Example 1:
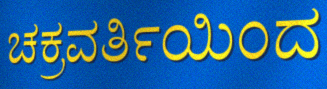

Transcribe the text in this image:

ಚಕ್ರವರ್ತಿಯಿಂದ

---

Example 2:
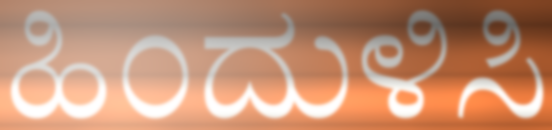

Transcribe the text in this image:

ಹಿಂದುಳಿಸಿ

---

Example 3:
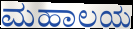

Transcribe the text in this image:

ಮಹಾಲಯ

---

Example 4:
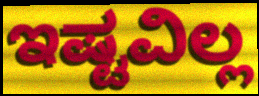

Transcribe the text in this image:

ಇಷ್ಟವಿಲ್ಲ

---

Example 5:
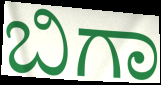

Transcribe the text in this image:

ಬಿಗಾ